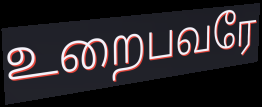
உறைபவரே